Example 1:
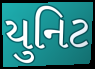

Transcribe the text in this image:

યુનિટ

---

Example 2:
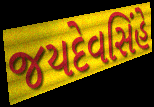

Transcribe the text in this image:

જયદેવસિંહે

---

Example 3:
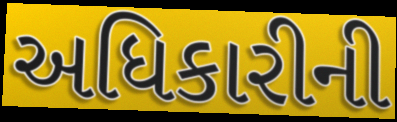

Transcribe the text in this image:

અધિકારીની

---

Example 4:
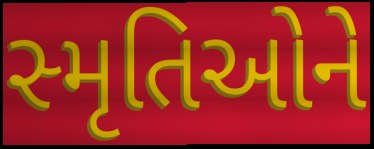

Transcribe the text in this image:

સ્મૃતિઓને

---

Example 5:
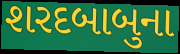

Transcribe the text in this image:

શરદબાબુના